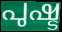
പുഷ്ട